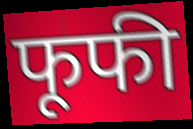
फूफी